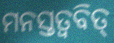
ମନସ୍ତତ୍ଵବିତ୍